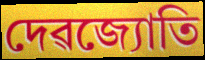
দেৱজ্যোতি